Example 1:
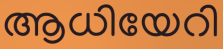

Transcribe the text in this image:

ആധിയേറി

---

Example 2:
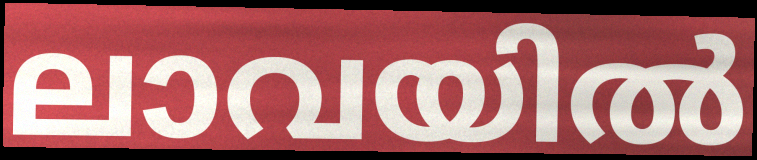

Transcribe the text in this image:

ലാവയിൽ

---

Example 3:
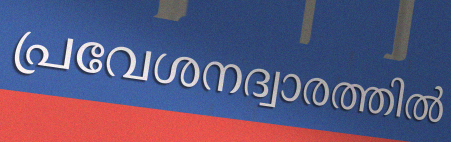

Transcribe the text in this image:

പ്രവേശനദ്വാരത്തിൽ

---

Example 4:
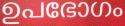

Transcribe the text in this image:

ഉപഭോഗം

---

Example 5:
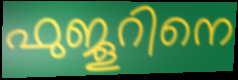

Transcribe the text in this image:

ഫുജൂറിനെ